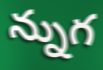
న్నుగ